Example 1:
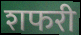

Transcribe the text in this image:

शफरी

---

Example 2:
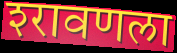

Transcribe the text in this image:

श्रावणला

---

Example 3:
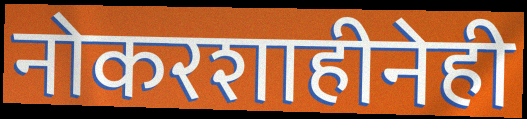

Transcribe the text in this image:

नोकरशाहीनेही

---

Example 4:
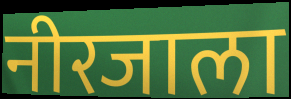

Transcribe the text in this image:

नीरजाला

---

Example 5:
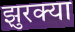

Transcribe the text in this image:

झुरक्या